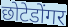
छोटेडोंगर